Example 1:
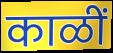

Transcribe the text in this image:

काळीं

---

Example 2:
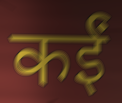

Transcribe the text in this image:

कईं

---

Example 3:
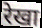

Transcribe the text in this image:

रेखा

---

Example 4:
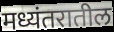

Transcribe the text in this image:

मध्यंतरातील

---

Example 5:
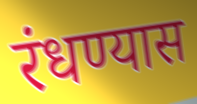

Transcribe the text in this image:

रंधण्यास